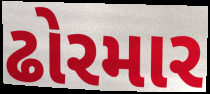
ઢોરમાર